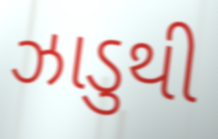
ઝાડુથી